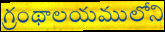
గ్రంథాలయములోని